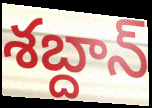
శబ్దాన్